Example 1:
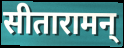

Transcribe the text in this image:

सीतारामन्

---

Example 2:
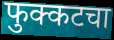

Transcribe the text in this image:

फुक्कटचा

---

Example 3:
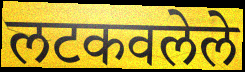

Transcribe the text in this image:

लटकवलेले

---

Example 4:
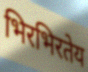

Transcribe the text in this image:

भिरभिरतेय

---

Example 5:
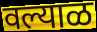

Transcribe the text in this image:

वल्याळ